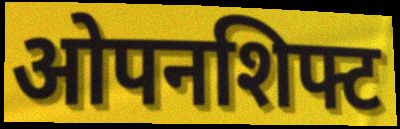
ओपनशिफ्ट